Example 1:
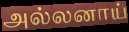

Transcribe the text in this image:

அல்லனாய்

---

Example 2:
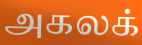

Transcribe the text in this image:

அகலக்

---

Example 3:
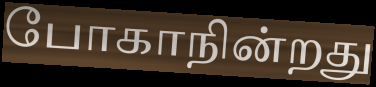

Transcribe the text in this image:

போகாநின்றது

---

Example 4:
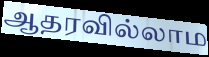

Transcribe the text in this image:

ஆதரவில்லாம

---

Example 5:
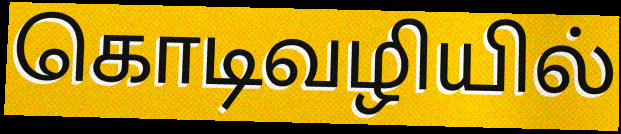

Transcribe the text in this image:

கொடிவழியில்